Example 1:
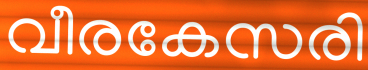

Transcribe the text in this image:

വീരകേസരി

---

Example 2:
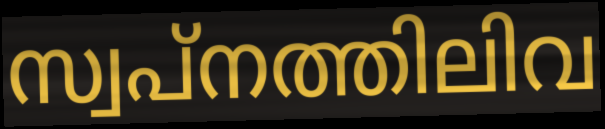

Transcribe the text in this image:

സ്വപ്നത്തിലിവ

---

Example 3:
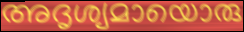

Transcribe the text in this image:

അദൃശ്യമായൊരു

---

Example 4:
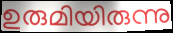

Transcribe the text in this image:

ഉരുമിയിരുന്നു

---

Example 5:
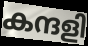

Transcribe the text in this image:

കന്ദളി